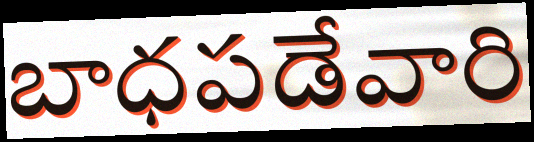
బాధపడేవారి